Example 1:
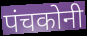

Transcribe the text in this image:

पंचकोनी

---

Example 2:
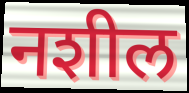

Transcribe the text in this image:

नशील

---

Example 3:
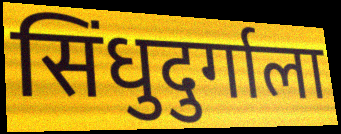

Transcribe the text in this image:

सिंधुदुर्गाला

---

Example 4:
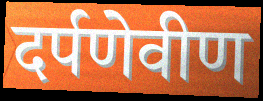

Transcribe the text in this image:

दर्पणेवीण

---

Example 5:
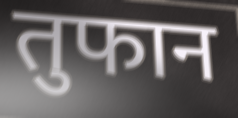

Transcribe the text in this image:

तुफान